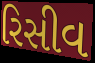
રિસીવ